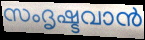
സംദൃഷ്ടവാൻ